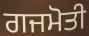
ਗਜਮੋਤੀ